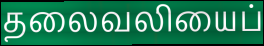
தலைவலியைப்